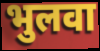
भुलवा